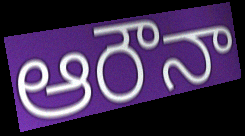
ఆరౌనా